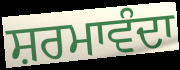
ਸ਼ਰਮਾਵੰਦਾ